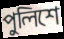
পুলিশে